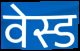
वेस्ड